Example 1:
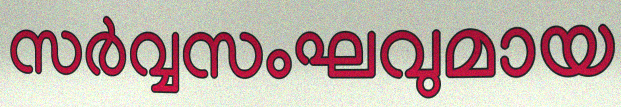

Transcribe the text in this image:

സർവ്വസംഘവുമായ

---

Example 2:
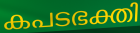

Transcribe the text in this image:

കപടഭക്തി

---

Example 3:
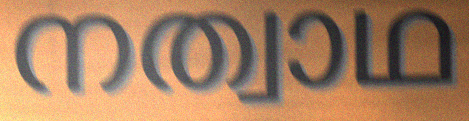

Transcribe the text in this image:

നത്വാഥ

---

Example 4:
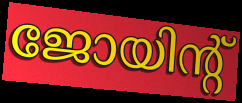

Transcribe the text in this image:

ജോയിന്റ്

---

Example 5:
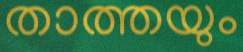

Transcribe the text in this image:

താത്തയും